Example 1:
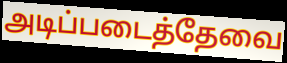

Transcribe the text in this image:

அடிப்படைத்தேவை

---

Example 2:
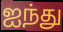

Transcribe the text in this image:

ஐந்து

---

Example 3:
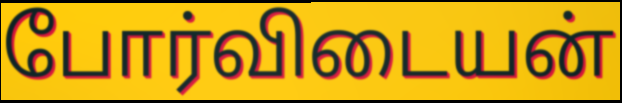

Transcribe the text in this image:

போர்விடையன்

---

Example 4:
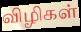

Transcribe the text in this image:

விழிகள்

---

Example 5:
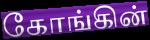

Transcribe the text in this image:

கோங்கின்